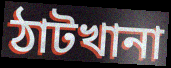
ঠাটখানা